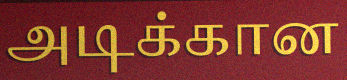
அடிக்கான